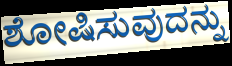
ಶೋಷಿಸುವುದನ್ನು